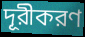
দূরীকরণ